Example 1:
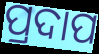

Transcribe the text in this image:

ପ୍ରଦାପ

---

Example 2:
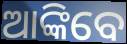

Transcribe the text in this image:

ଆଙ୍କିବେ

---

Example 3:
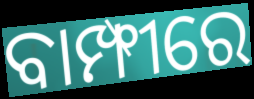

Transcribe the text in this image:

ବାମ୍ଫୀରେ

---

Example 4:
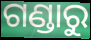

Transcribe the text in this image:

ଗଣ୍ଡାରୁ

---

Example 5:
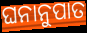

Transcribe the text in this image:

ଘନାନୁପାତ